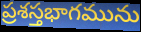
ప్రశస్తభాగమును